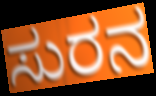
ಸುರನ